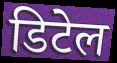
डिटेल